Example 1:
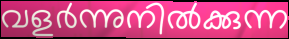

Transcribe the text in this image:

വളർന്നുനിൽക്കുന്ന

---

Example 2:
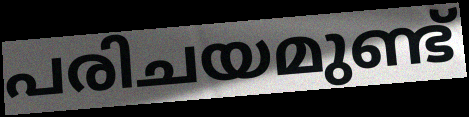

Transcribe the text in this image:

പരിചയമുണ്ട്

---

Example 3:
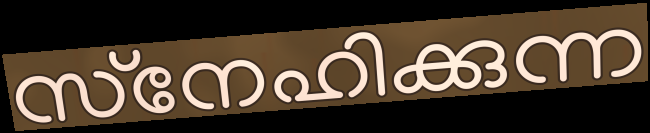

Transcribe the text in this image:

സ്‌നേഹിക്കുന്ന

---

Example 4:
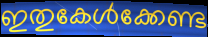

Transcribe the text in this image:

ഇതുകേൾക്കേണ്ട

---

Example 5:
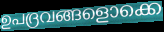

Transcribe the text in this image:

ഉപദ്രവങ്ങളൊക്കെ